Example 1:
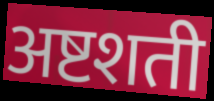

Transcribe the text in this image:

अष्टशती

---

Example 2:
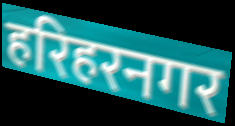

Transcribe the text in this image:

हरिहरनगर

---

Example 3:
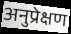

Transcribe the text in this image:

अनुप्रेक्षण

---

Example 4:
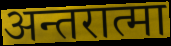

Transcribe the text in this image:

अन्तरात्मा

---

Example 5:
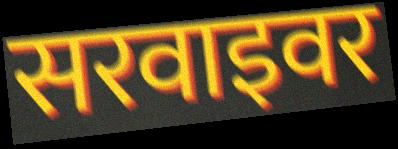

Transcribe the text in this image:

सरवाइवर